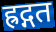
ह्रद्गत